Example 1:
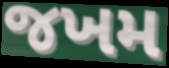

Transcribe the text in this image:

જખમ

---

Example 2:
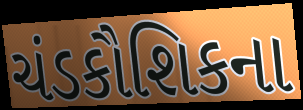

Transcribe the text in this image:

ચંડકૌશિકના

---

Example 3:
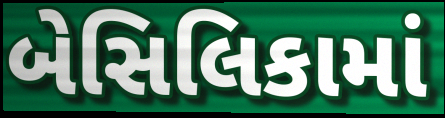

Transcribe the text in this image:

બેસિલિકામાં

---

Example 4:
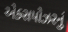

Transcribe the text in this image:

એક્સપોઝરનું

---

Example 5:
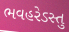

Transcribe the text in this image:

ભવહરેઽસ્તુ